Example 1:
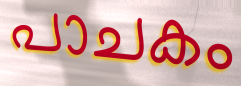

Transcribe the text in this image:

പാചകം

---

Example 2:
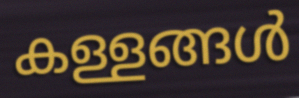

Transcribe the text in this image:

കള്ളങ്ങൾ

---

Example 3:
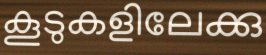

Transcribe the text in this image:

കൂടുകളിലേക്കു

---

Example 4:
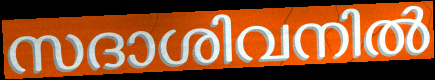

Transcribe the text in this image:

സദാശിവനിൽ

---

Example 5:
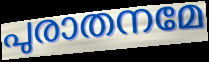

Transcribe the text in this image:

പുരാതനമേ